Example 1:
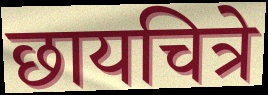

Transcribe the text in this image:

छायचित्रे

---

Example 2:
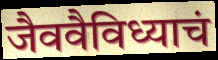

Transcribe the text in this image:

जैववैविध्याचं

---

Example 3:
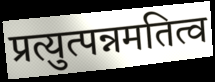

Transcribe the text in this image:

प्रत्युत्पन्नमतित्व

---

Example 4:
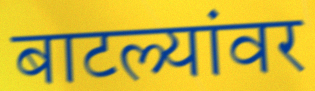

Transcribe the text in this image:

बाटल्यांवर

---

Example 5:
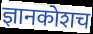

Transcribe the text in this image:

ज्ञानकोशच